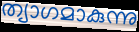
ത്യാഗമാകുന്നു